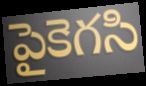
పైకెగసి